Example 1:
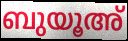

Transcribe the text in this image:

ബുയൂഅ്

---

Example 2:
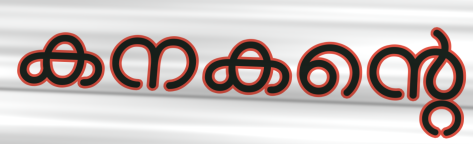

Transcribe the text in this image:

കനകന്റെ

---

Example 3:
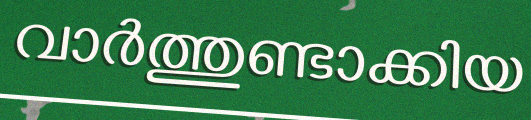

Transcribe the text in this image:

വാർത്തുണ്ടാക്കിയ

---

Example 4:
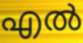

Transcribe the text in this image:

എൽ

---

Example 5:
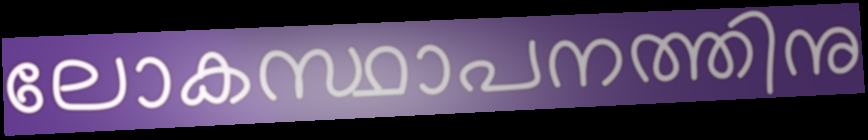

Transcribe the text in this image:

ലോകസ്ഥാപനത്തിനു